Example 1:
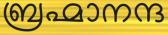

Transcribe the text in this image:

ബ്രഹ്മാനന്ദ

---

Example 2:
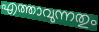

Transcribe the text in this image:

എത്താവുന്നതും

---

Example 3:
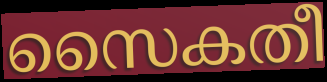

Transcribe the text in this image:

സൈകതീ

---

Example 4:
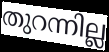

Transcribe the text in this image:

തുറന്നില്ല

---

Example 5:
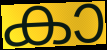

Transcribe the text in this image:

കാ